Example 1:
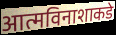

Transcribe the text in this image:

आत्मविनाशाकडे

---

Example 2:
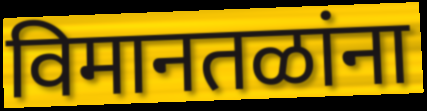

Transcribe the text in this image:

विमानतळांना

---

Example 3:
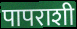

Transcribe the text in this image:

पापराशी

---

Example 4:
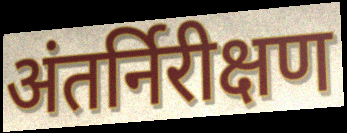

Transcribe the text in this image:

अंतर्निरीक्षण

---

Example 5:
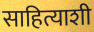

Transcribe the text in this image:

साहित्याशी